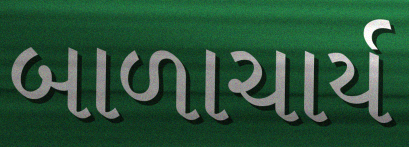
બાળાચાર્ય